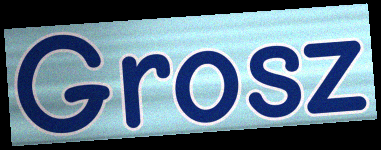
Grosz